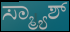
ಸ್ಮ್ಯಾಶ್